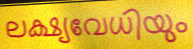
ലക്ഷ്യവേധിയും